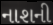
નાશની